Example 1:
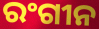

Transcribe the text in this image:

ରଂଗୀନ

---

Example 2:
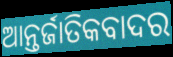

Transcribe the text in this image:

ଆନ୍ତର୍ଜାତିକବାଦର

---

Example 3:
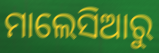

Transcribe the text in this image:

ମାଲେସିଆରୁ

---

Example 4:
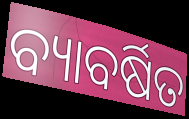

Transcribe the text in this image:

ବ୍ୟାବର୍ଷିତ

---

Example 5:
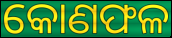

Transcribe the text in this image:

କୋଣଫଳ